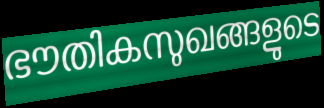
ഭൗതികസുഖങ്ങളുടെ